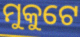
ମୁକୁଟେ